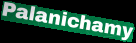
Palanichamy